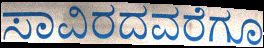
ಸಾವಿರದವರೆಗೂ